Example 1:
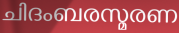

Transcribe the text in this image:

ചിദംബരസ്മരണ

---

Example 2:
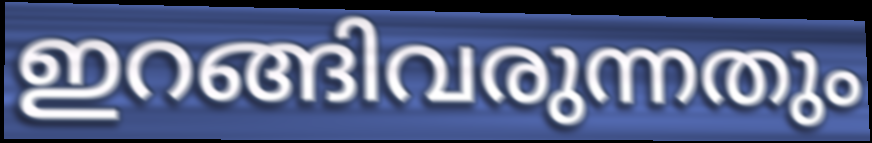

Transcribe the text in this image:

ഇറങ്ങിവരുന്നതും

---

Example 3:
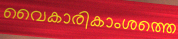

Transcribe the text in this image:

വൈകാരികാംശത്തെ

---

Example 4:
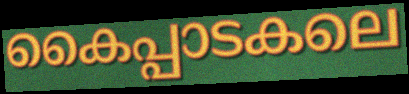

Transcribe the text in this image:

കൈപ്പാടകലെ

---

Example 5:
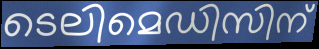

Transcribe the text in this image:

ടെലിമെഡിസിന്